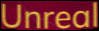
Unreal